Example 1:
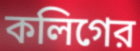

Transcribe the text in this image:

কলিগের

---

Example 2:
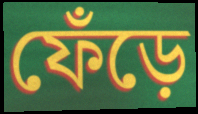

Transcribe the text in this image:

ফেঁড়ে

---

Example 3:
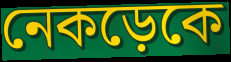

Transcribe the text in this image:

নেকড়েকে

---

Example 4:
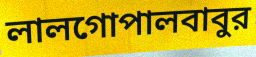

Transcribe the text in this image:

লালগোপালবাবুর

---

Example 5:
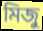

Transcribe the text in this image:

মিজু